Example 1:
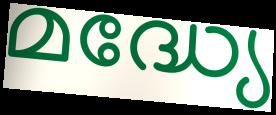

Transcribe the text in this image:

മദ്ധ്യേ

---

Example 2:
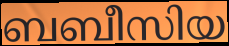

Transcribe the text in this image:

ബബീസിയ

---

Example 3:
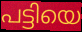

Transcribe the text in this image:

പട്ടിയെ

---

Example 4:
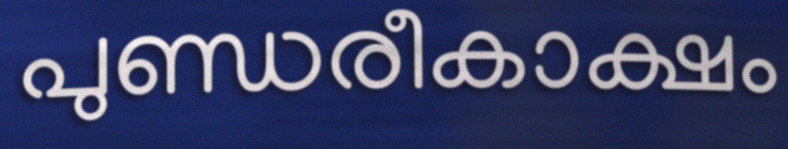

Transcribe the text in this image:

പുണ്ഡരീകാക്ഷം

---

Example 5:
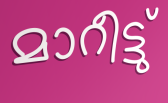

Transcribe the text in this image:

മാറീട്ടു്